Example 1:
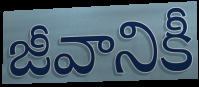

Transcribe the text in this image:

జీవానికీ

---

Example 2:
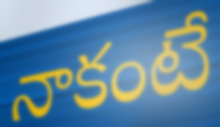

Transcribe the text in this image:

నాకంటే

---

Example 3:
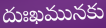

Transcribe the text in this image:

దుఃఖమునకు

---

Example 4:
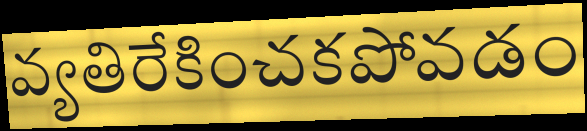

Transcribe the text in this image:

వ్యతిరేకించకపోవడం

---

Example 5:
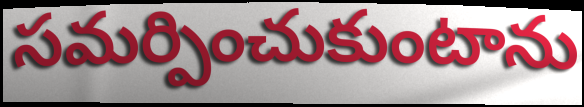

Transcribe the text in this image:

సమర్పించుకుంటాను